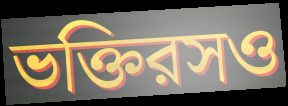
ভক্তিরসও